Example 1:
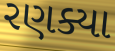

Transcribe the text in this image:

રણક્યા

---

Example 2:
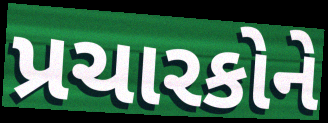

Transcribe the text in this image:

પ્રચારકોને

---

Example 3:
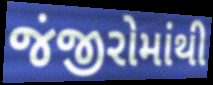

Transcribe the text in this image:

જંજીરોમાંથી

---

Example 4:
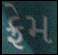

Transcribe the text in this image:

ફ્રેમ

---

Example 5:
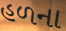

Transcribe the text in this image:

હળના